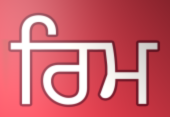
ਰਿਮ